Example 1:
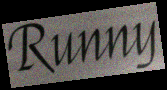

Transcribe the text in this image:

Runny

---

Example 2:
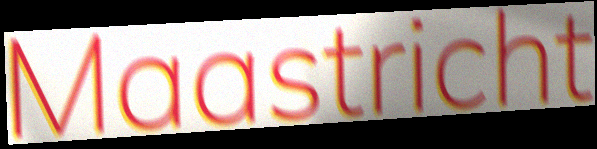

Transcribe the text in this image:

Maastricht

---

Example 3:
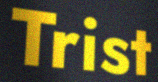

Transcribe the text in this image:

Trist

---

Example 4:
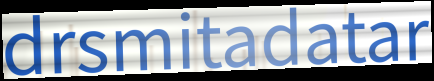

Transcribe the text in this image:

drsmitadatar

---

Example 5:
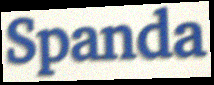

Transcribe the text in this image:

Spanda